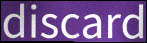
discard